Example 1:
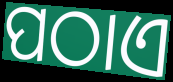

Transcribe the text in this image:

ପଠାଏ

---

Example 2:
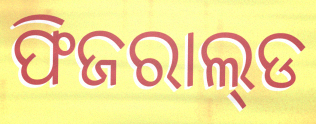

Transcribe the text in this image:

ଫିଜରାଲ୍‌ଡ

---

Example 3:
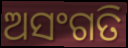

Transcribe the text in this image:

ଅସଂଗତି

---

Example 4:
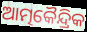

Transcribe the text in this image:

ଆତ୍ମକୈନ୍ଦ୍ରିକ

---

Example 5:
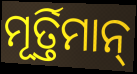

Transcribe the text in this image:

ମୂର୍ତ୍ତିମାନ୍